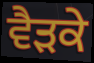
ਵੈੜਕੇ